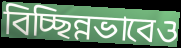
বিচ্ছিন্নভাবেও